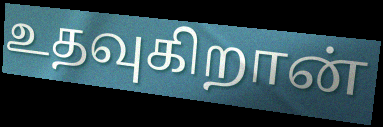
உதவுகிறான்